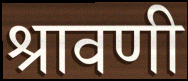
श्रावणी